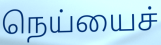
நெய்யைச்